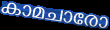
കാമചാരോ